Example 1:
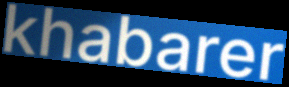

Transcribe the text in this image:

khabarer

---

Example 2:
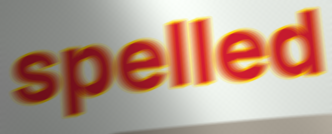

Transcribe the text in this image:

spelled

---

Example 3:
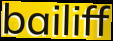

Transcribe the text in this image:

bailiff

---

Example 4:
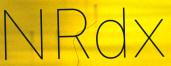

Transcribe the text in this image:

NRdx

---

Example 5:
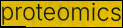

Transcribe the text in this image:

proteomics